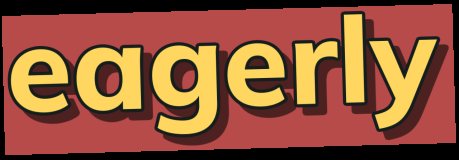
eagerly